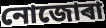
নোজোৰা